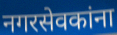
नगरसेवकांना